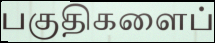
பகுதிகளைப்